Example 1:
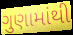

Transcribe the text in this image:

ગુણામાંથી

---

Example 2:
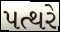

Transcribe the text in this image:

પત્થરે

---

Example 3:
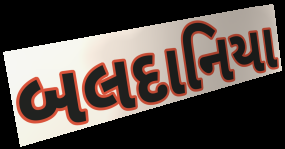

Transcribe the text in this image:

બલદાનિયા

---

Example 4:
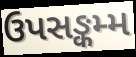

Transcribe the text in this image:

ઉપસઙ્કમ્મ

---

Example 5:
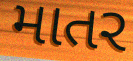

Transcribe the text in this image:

માતર